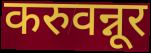
करुवन्नूर